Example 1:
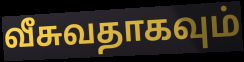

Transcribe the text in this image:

வீசுவதாகவும்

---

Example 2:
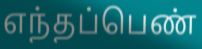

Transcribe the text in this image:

எந்தப்பெண்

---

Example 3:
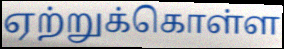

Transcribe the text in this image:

ஏற்றுக்கொள்ள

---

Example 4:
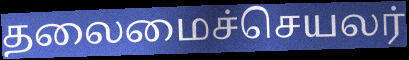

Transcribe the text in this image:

தலைமைச்செயலர்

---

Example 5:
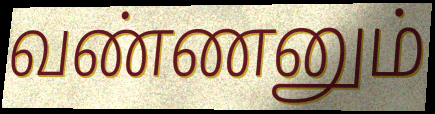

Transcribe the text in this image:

வண்ணனும்